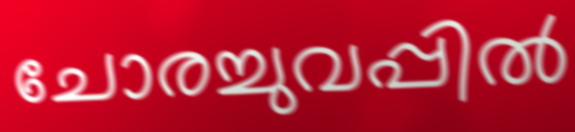
ചോരച്ചുവപ്പിൽ